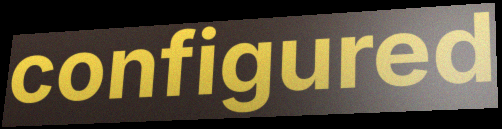
configured